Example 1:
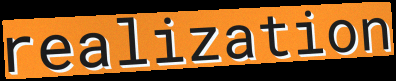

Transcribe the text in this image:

realization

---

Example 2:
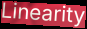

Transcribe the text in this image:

Linearity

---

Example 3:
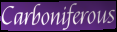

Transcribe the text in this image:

Carboniferous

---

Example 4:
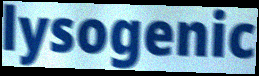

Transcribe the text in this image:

lysogenic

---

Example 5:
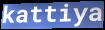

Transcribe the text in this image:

kattiya